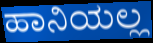
ಹಾನಿಯಲ್ಲ